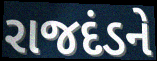
રાજદંડને